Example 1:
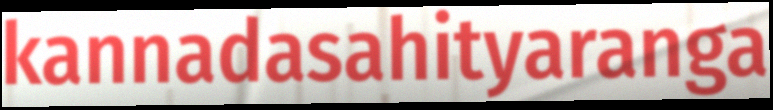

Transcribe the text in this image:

kannadasahityaranga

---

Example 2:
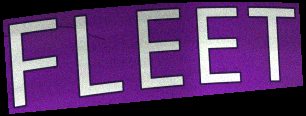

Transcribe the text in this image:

FLEET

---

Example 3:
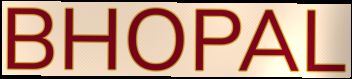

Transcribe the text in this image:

BHOPAL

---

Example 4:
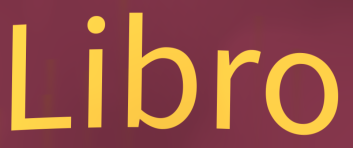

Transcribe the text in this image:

Libro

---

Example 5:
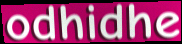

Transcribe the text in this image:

odhidhe